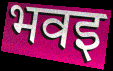
भवइ